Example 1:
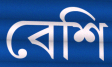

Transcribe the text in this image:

বেশি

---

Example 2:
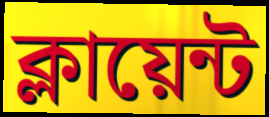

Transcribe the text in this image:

ক্লায়েন্ট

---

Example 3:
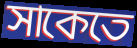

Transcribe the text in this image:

সাকেতে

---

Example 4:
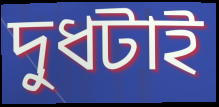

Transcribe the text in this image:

দুধটাই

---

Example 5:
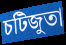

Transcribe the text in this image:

চটিজুতা